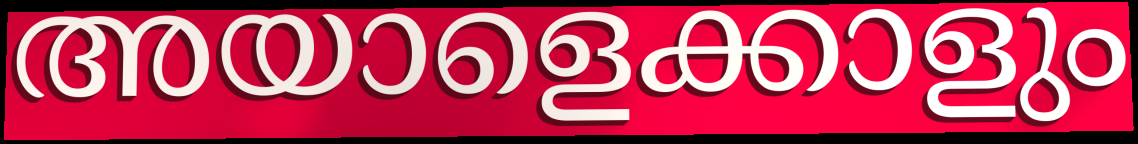
അയാളെക്കാളും